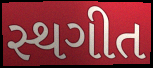
સ્થગીત